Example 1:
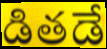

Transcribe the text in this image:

డితడే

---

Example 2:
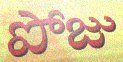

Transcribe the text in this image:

పోజు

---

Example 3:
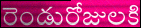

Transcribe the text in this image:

రెండురోజులకి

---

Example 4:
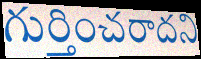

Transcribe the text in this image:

గుర్తించరాదని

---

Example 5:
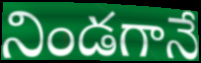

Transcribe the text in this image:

నిండగానే